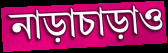
নাড়াচাড়াও